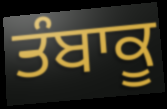
ਤੰਬਾਕੂ